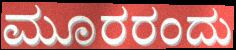
ಮೂರರಂದು